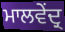
ਮਾਲਵੇਂਦ੍ਰ